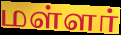
மள்ளர்